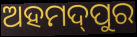
ଅହମଦ୍‌ପୁର